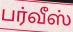
பர்வீஸ்